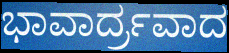
ಭಾವಾರ್ದ್ರವಾದ